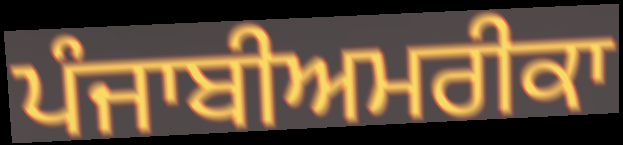
ਪੰਜਾਬੀਅਮਰੀਕਾ